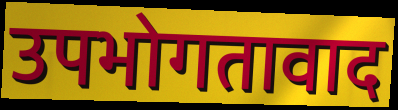
उपभोगतावाद